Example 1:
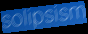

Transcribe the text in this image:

solipsism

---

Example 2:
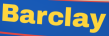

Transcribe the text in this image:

Barclay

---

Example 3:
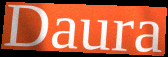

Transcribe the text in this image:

Daura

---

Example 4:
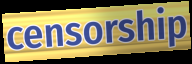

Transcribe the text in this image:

censorship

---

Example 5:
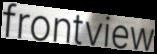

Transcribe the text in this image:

frontview